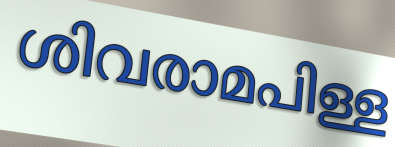
ശിവരാമപിള്ള